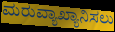
ಮರುವ್ಯಾಖ್ಯಾನಿಸಲು